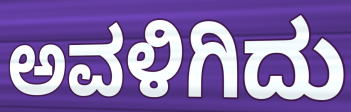
ಅವಳಿಗಿದು